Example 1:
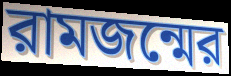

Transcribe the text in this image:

রামজন্মের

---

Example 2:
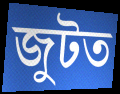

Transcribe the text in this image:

জুটত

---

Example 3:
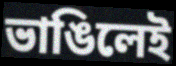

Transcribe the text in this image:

ভাঙিলেই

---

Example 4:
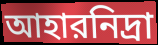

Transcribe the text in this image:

আহারনিদ্রা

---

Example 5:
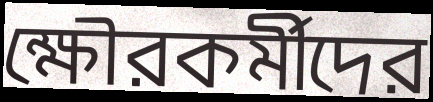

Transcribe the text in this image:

ক্ষৌরকর্মীদের